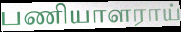
பணியாளராய்